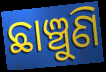
ଛାଞ୍ଚୁଣି